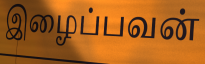
இழைப்பவன்